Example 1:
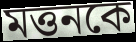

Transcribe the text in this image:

মত্তনকে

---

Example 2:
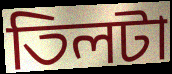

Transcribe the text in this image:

তিলটা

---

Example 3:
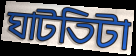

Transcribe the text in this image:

ঘাটতিটা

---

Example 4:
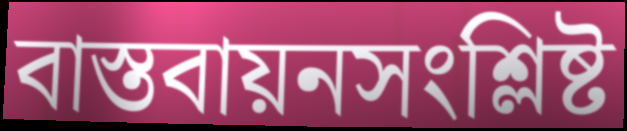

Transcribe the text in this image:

বাস্তবায়নসংশ্লিষ্ট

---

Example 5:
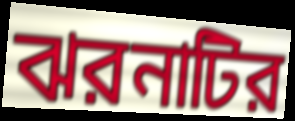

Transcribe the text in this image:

ঝরনাটির